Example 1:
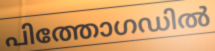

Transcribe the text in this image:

പിത്തോഗഡിൽ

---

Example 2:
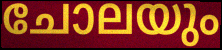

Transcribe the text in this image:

ചോലയും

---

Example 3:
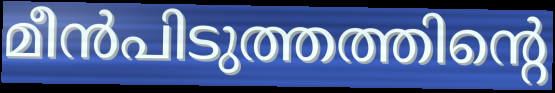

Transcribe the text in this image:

മീൻപിടുത്തത്തിന്റെ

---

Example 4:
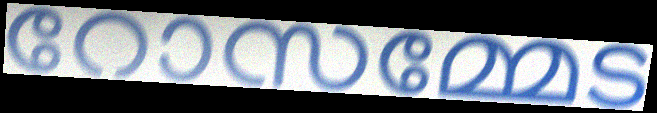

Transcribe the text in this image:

റോസമ്മേട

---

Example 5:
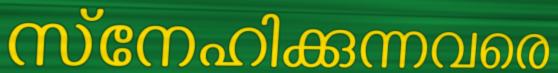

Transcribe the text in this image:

സ്‌നേഹിക്കുന്നവരെ